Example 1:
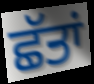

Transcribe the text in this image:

ਛੱਤਾਂ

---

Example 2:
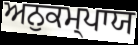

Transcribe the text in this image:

ਅਨੁਕਮ੍ਪਾਯ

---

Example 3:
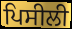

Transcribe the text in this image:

ਪਿਸੀਲੀ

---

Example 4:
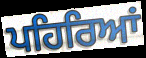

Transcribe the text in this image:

ਪਹਿਰਿਆਂ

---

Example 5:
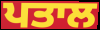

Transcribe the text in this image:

ਪਤਾਲ